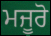
ਮਜੂਰੋ